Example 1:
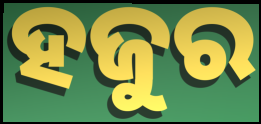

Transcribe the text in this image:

ହଜୁର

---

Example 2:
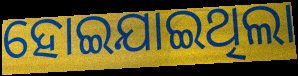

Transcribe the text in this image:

ହୋଇଯାଇଥିଲା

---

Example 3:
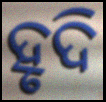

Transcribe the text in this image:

ହୃଦି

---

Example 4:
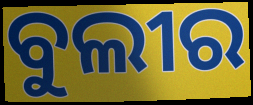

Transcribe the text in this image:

ବୁଲୀର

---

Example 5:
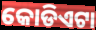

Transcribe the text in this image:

କୋଡିଏଟା